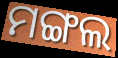
ମଙ୍ଗଲ